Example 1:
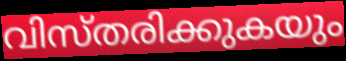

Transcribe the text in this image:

വിസ്തരിക്കുകയും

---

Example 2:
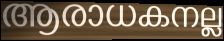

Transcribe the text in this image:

ആരാധകനല്ല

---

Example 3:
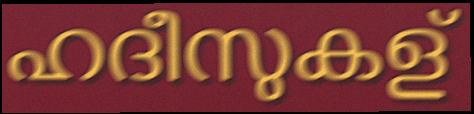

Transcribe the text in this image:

ഹദീസുകള്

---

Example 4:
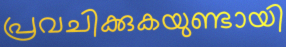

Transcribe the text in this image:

പ്രവചിക്കുകയുണ്ടായി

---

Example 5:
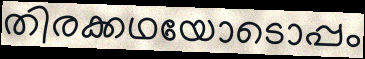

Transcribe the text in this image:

തിരക്കഥയോടൊപ്പം